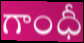
గాంధీ